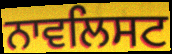
ਨਾਵਲਿਸਟ